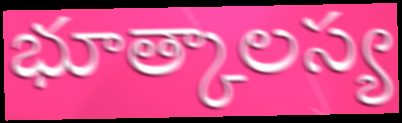
భూత్కాలస్య